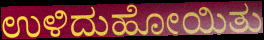
ಉಳಿದುಹೋಯಿತು